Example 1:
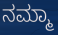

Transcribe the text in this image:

ನಮ್ಮಾ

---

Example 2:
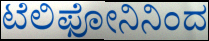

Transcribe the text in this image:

ಟೆಲಿಫೋನಿನಿಂದ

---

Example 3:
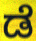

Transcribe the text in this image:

ಡೆ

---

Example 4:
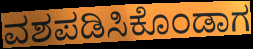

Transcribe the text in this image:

ವಶಪಡಿಸಿಕೊಂಡಾಗ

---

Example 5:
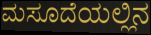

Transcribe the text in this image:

ಮಸೂದೆಯಲ್ಲಿನ